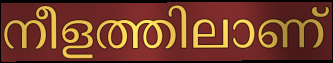
നീളത്തിലാണ്